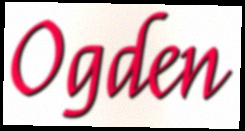
Ogden